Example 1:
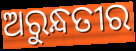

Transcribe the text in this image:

ଅରୁନ୍ଧତୀର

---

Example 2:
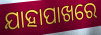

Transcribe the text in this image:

ଯାହାପାଖରେ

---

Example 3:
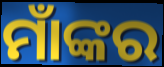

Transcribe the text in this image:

ମାଁଙ୍କର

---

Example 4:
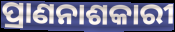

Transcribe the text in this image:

ପ୍ରାଣନାଶକାରୀ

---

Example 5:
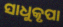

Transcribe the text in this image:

ସାଧୁକୃପା